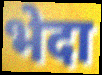
भेदा